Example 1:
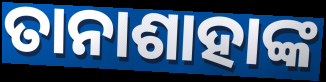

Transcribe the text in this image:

ତାନାଶାହାଙ୍କ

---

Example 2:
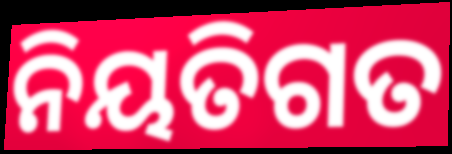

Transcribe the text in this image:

ନିୟତିଗତ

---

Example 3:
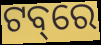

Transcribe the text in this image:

ଟବ୍‌ରେ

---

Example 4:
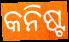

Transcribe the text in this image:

କନିଷ୍ଟ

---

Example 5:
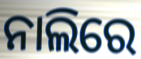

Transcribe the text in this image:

ନାଲିରେ